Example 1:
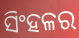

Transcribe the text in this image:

ସିଂହଳର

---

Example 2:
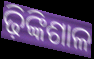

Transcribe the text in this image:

ଢ଼ିଙ୍କିଶାଳ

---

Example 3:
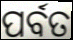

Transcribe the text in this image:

ପର୍ବତ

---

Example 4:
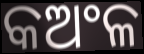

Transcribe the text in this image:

କଅଂଳ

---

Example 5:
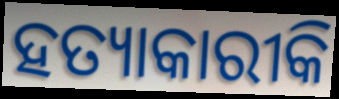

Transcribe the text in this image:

ହତ୍ୟାକାରୀକି